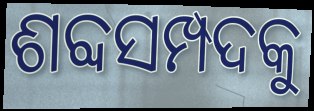
ଶବ୍ଦସମ୍ପଦକୁ